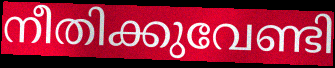
നീതിക്കുവേണ്ടി